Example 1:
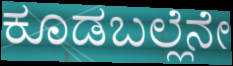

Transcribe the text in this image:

ಕೂಡಬಲ್ಲೆನೇ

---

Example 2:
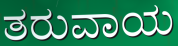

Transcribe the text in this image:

ತರುವಾಯ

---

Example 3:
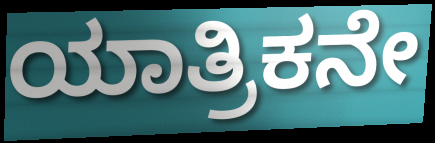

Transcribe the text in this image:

ಯಾತ್ರಿಕನೇ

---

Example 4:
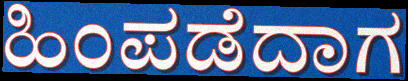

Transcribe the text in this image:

ಹಿಂಪಡೆದಾಗ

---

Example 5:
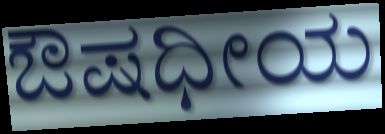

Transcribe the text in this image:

ಔಷಧೀಯ